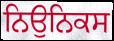
ਨਿਉਨਿਕਸ